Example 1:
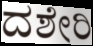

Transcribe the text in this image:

ದಶೇರಿ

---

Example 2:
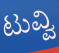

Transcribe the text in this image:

ಟುವ್ವಿ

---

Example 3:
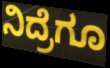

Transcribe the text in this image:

ನಿದ್ರೆಗೂ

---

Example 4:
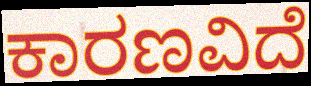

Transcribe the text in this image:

ಕಾರಣವಿದೆ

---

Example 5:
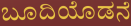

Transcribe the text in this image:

ಬೂದಿಯೊಡನೆ